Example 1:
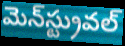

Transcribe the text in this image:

మెన్‌స్ట్రువల్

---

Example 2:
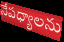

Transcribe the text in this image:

నేపధ్యాలను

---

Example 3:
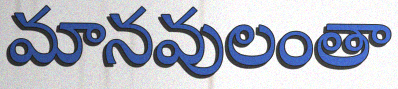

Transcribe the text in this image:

మానవులంతా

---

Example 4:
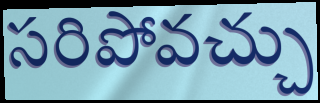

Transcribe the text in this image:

సరిపోవచ్చు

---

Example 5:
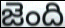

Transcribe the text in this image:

జెంది